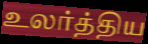
உலர்த்திய